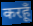
करहूँ